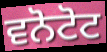
ਵਨੋਟੋਟ